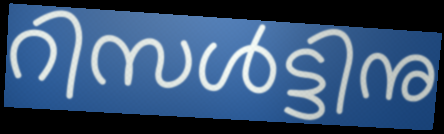
റിസൾട്ടിനു